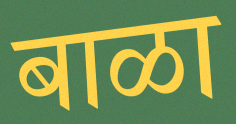
बाळा